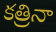
కత్రినా